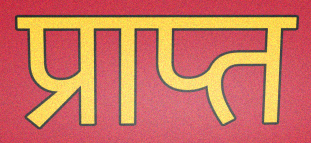
प्राप्‍त